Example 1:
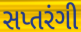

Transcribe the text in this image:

સપ્તરંગી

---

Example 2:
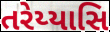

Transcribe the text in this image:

તરેય્યાસિ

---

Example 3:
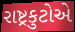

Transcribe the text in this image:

રાષ્ટ્રકુટોએ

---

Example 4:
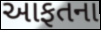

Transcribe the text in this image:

આફતના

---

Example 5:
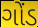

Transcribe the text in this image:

ગોંડ